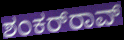
ಶಂಕರ್‌ರಾವ್